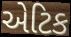
એટિક